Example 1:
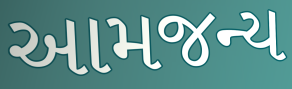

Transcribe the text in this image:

આમજન્ય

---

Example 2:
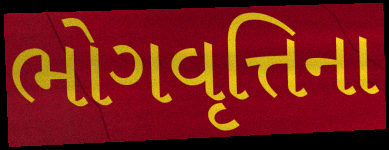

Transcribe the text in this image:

ભોગવૃત્તિના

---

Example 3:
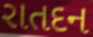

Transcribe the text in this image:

રાતદન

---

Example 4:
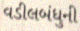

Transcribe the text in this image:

વડીલબંધુની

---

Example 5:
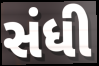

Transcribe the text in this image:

સંધી